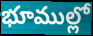
భూముల్లో